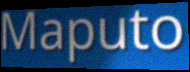
Maputo